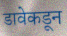
डावेकडून